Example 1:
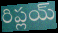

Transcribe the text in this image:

రిప్లయ్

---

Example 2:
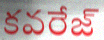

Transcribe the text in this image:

కవరేజ్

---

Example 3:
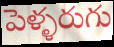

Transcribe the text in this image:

పెళ్ళరుగు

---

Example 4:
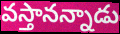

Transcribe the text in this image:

వస్తానన్నాడు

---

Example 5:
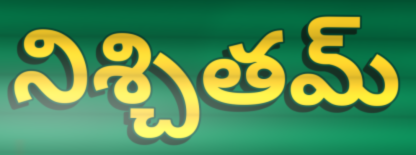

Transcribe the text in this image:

నిశ్చితమ్